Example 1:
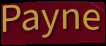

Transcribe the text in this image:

Payne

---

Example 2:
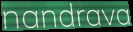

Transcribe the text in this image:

nandrava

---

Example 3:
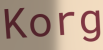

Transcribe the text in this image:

Korg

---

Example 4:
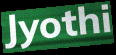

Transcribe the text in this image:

Jyothi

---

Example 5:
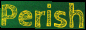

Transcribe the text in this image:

Perish